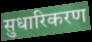
सुधारिकरण